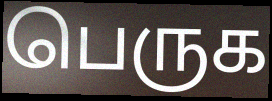
பெருக